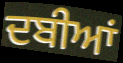
ਦਬੀਆਂ